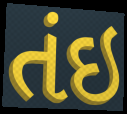
તંઇ